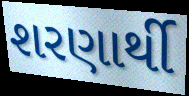
શરણાર્થી